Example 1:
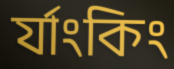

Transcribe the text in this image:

র্যাংকিং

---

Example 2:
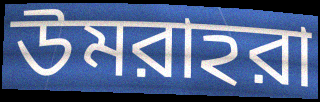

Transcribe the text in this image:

উমরাহরা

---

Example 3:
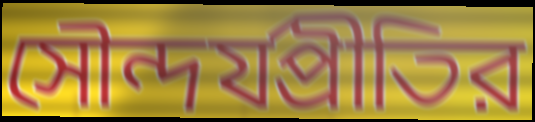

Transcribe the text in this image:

সৌন্দর্যপ্রীতির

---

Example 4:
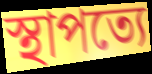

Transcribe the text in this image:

স্থাপত্যে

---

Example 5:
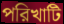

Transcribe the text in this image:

পরিখাটি